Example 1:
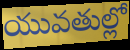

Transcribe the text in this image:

యువతుల్లో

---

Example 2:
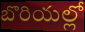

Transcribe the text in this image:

బొరియల్లో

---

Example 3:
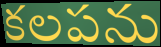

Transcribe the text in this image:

కలపను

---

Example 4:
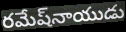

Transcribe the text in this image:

రమేష్‌నాయుడు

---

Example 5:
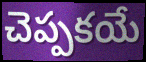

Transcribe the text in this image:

చెప్పకయే